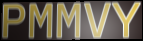
PMMVY